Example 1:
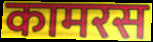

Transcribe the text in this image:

कामरस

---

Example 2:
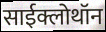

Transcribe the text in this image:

साईक्लोथॉन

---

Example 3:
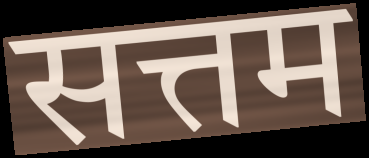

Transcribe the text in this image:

सत्तम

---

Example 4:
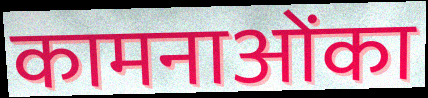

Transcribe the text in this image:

कामनाओंका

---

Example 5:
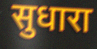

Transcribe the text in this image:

सुधारा